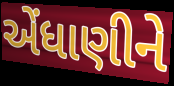
એંધાણીને